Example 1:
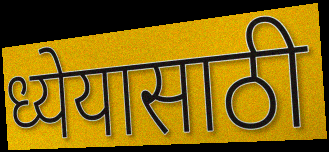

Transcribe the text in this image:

ध्येयासाठी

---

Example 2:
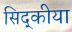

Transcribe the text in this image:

सिद्‌कीया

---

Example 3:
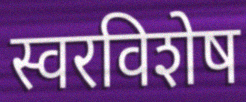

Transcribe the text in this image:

स्वरविशेष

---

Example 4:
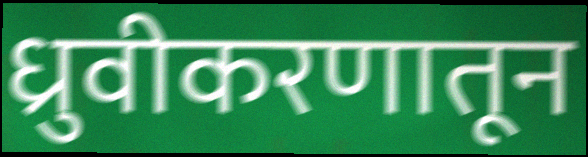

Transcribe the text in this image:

ध्रुवीकरणातून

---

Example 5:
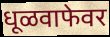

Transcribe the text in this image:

धूळवाफेवर